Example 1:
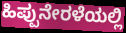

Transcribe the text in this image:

ಹಿಪ್ಪುನೇರಳೆಯಲ್ಲಿ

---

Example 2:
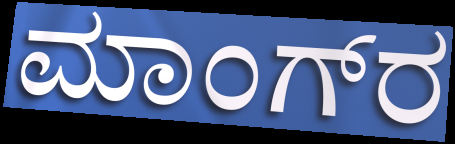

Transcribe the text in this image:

ಮಾಂಗ್‌ರ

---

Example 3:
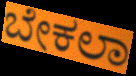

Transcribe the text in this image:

ಬೇಕಲಾ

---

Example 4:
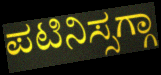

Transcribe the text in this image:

ಪಟಿನಿಸ್ಸಗ್ಗಾ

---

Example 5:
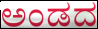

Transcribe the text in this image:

ಅಂಡದ